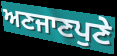
ਅਣਜਾਣਪੁਣੇ